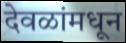
देवळांमधून